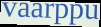
vaarppu